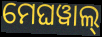
ମେଘୱାଲ୍